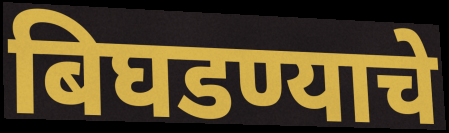
बिघडण्याचे